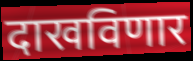
दाखविणार